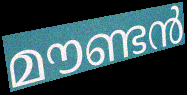
മൗണ്ടൻ